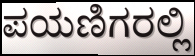
ಪಯಣಿಗರಲ್ಲಿ